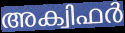
അക്വിഫർ